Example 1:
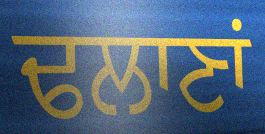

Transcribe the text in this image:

ਢਲਾਣਾਂ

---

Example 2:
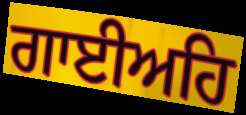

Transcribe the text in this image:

ਗਾਈਅਹਿ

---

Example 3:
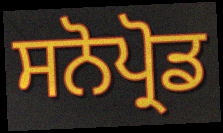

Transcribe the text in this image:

ਸਨੋਪ੍ਰੋਡ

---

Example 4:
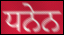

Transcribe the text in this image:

ਧਨੇਨ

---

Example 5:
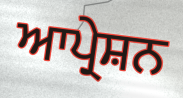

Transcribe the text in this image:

ਆਪ੍ਰੇਸ਼ਨ